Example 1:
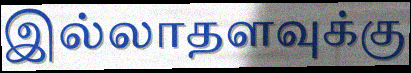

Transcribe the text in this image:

இல்லாதளவுக்கு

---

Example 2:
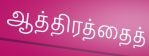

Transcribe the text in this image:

ஆத்திரத்தைத்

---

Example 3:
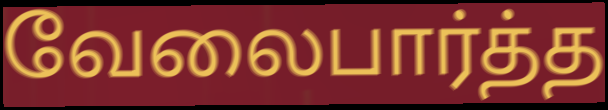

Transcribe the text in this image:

வேலைபார்த்த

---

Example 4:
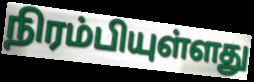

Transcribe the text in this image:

நிரம்பியுள்ளது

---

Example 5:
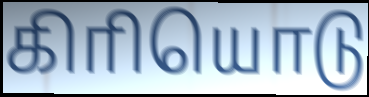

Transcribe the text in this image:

கிரியொடு